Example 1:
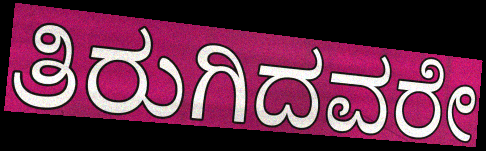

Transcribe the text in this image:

ತಿರುಗಿದವರೇ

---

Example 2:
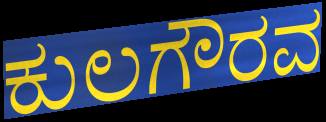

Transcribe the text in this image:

ಕುಲಗೌರವ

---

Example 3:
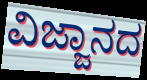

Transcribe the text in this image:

ವಿಜ್ಜಾನದ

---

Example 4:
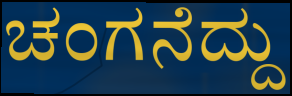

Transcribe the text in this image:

ಚಂಗನೆದ್ದು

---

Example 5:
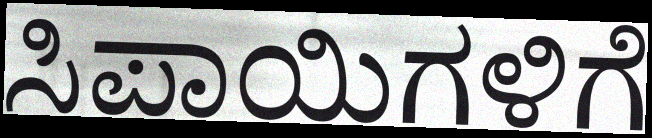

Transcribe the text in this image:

ಸಿಪಾಯಿಗಳಿಗೆ